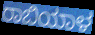
ರಾಬಿಯಾಳ